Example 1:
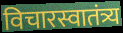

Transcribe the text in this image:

विचारस्वातंत्र्य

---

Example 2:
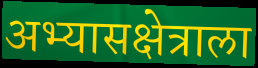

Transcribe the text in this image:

अभ्यासक्षेत्राला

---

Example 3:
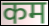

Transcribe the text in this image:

कम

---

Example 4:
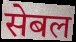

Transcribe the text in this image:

सेबल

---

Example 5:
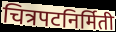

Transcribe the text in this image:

चित्रपटनिर्मिती